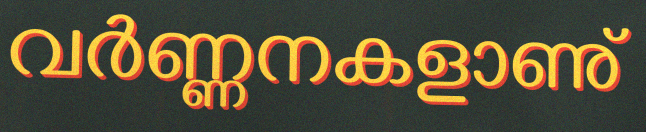
വർണ്ണനകളാണു്